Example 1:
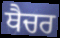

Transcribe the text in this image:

ਥੈਚਰ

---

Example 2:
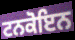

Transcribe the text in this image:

ਟਨਕੋਇਨ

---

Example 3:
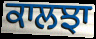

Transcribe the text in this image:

ਕਾਲਝਾ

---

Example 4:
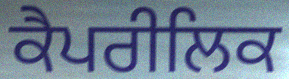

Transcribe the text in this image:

ਕੈਪਰੀਲਿਕ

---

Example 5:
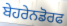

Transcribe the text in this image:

ਬੇਹਰੇਨਡੋਰਫ